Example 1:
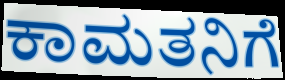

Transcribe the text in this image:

ಕಾಮತನಿಗೆ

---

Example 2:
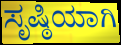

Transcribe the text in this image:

ಸೃಷ್ಠಿಯಾಗಿ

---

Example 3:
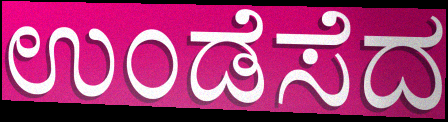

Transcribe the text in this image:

ಉಂಡೆಸೆದ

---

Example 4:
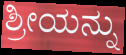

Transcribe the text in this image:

ಶ್ರೀಯನ್ನು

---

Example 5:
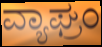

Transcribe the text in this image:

ವ್ಯಾಘ್ರಂ